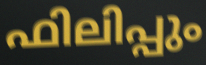
ഫിലിപ്പും